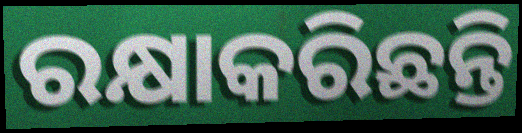
ରକ୍ଷାକରିଛନ୍ତି